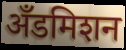
अँडमिशन